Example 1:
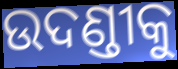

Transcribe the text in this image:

ଉଦଣ୍ଡୀକୁ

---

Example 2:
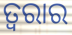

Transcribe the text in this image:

ତ୍ୱରାର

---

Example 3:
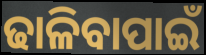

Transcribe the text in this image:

ଢାଳିବାପାଇଁ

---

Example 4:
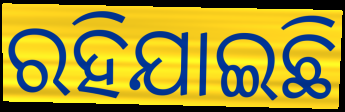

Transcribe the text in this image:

ରହିଯାଇଛି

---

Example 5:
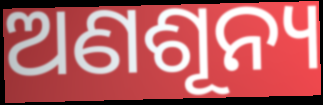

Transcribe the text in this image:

ଅଣଶୂନ୍ୟ